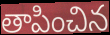
తాపించిన